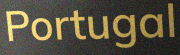
Portugal